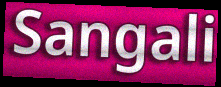
Sangali